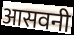
आसवनी